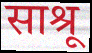
साश्रू